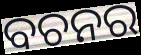
ବଚନର